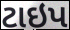
ટાઇપ